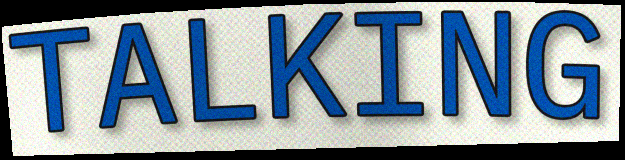
TALKING